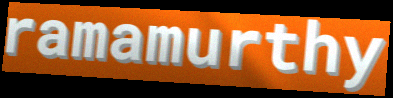
ramamurthy